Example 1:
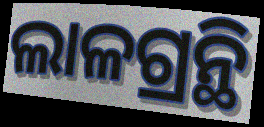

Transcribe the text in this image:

ଲାଳଗ୍ରନ୍ଥି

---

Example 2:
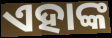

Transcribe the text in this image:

ଏହାଙ୍କ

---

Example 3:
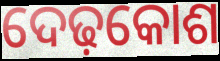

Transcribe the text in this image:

ଦେଢ଼କୋଶ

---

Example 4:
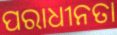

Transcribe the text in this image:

ପରାଧୀନତା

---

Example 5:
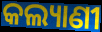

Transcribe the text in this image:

କଲ୍ୟାଣୀ